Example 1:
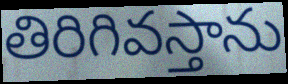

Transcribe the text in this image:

తిరిగివస్తాను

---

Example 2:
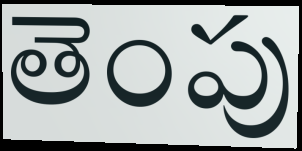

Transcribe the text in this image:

తెంపు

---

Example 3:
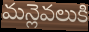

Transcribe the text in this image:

మన్లెవలుకి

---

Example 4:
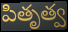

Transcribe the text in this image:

పితృత్వ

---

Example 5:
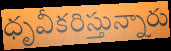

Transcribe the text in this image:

ధృవీకరిస్తున్నారు